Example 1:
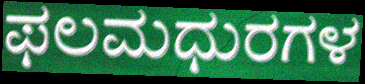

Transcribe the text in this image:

ಫಲಮಧುರಗಳ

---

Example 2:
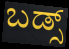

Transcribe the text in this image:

ಬಡ್ಸ್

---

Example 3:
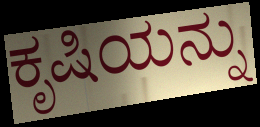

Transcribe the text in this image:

ಕೃಷಿಯನ್ನು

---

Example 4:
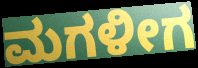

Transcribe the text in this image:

ಮಗಳೀಗ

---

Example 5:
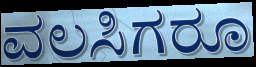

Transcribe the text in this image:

ವಲಸಿಗರೂ